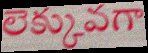
లెక్కువగా